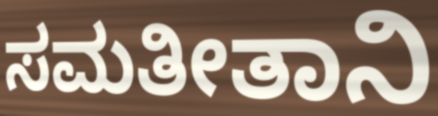
ಸಮತೀತಾನಿ